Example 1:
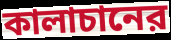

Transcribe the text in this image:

কালাচানের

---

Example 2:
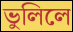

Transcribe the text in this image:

ভুলিলে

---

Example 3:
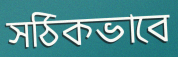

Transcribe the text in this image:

সঠিকভাবে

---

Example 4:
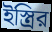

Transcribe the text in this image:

ইস্ত্রির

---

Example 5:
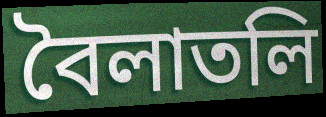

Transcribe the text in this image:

বৈলাতলি